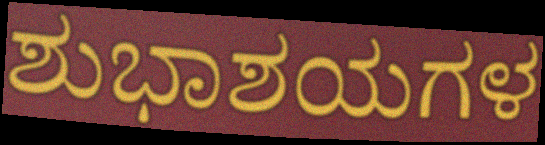
ಶುಭಾಶಯಗಳ